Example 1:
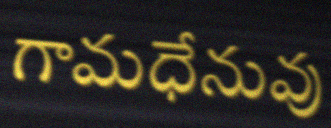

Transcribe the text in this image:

గామధేనువు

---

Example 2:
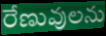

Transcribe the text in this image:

రేణువులను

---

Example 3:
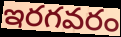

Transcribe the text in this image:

ఇరగవరం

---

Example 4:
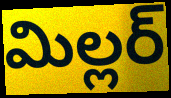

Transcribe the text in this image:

మిల్లర్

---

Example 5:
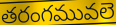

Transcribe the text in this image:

తరంగమువలె